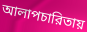
আলাপচারিতায়